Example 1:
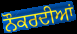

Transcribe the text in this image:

ਨੌਕਰਦੀਆਂ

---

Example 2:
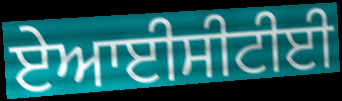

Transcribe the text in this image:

ਏਆਈਸੀਟੀਈ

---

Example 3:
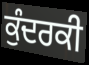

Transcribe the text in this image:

ਕੁੰਦਰਕੀ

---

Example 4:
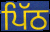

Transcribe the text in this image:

ਪਿੱਠ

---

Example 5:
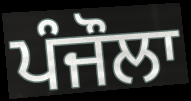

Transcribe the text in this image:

ਪੰਜੌਲਾ